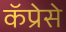
कॅप्रेसे